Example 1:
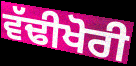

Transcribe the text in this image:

ਵੱਢੀਖੋਰੀ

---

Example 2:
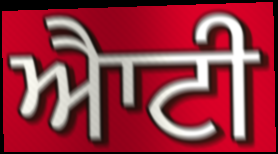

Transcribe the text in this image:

ਐਾਟੀ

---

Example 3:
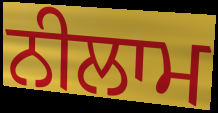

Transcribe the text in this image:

ਨੀਲਾਮ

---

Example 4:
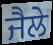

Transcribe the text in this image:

ਜੈਲੇ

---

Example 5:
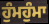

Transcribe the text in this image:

ਹੁੰਮਹੁੰਮਾ